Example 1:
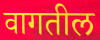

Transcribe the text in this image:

वागतील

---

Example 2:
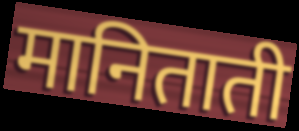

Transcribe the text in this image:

मानिताती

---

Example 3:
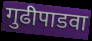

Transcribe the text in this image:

गुढीपाडवा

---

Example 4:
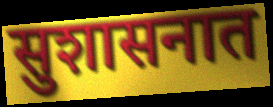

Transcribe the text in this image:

सुशासनात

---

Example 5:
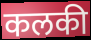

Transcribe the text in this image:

कलकी